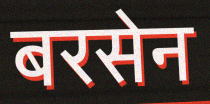
बरसेन